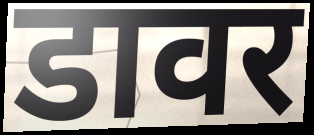
डावर